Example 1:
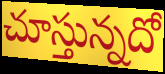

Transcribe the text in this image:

చూస్తున్నదో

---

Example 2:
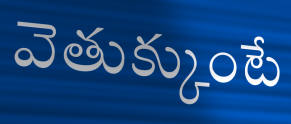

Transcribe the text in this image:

వెతుక్కుంటే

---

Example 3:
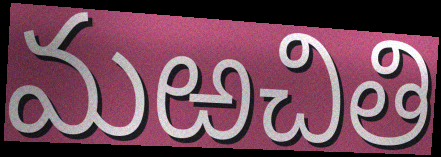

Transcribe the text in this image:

మఱచితి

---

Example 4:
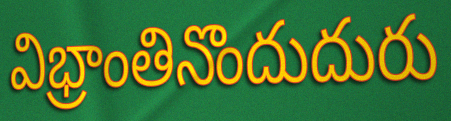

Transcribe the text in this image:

విభ్రాంతినొందుదురు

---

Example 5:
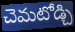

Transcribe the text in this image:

చెమటోడ్చి